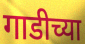
गाडीच्या